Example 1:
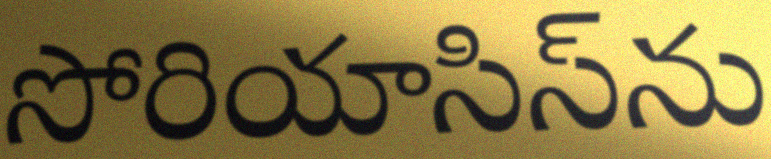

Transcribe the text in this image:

సోరియాసిస్‌ను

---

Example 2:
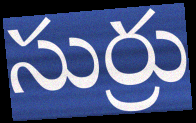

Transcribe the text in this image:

సుర్రు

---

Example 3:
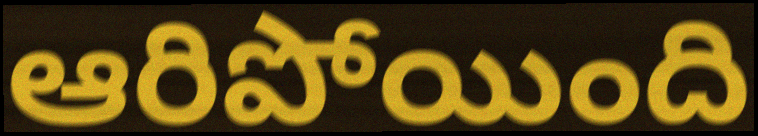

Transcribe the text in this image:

ఆరిపోయింది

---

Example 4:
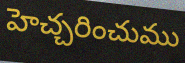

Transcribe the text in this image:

హెచ్చరించుము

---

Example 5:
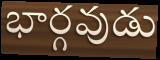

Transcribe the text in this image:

భార్గవుడు